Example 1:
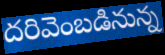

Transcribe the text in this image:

దరివెంబడినున్న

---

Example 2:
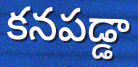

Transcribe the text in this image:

కనపడ్డా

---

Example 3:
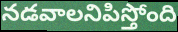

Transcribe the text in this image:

నడవాలనిపిస్తోంది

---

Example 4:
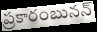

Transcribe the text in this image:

ప్రకారంబునన్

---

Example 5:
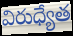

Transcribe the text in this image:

విరుధ్యేత